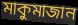
মাকুমাজান